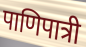
पाणिपात्री